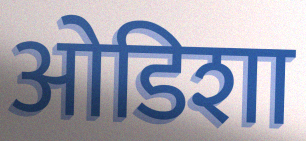
ओडिशा